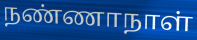
நண்ணாநாள்